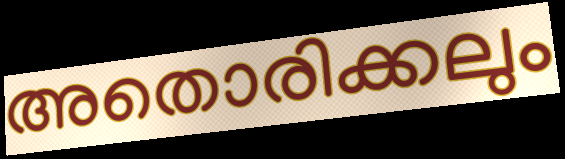
അതൊരിക്കലും